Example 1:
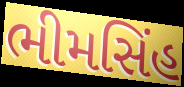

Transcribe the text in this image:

ભીમસિંહ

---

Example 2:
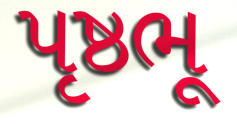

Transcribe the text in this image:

પૃષ્ઠભૂ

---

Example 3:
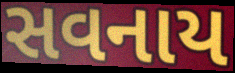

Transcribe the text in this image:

સવનાય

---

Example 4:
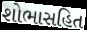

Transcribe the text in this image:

શોભાસહિત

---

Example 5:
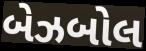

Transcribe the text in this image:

બેઝબોલ